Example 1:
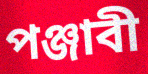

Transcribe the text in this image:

পঞ্জাবী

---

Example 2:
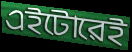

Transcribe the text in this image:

এইটোৱেই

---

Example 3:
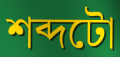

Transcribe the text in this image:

শব্দটো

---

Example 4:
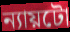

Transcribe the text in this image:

ন্যায়টো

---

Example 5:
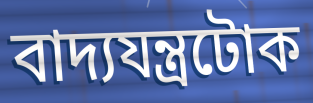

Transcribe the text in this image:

বাদ্যযন্ত্ৰটোক